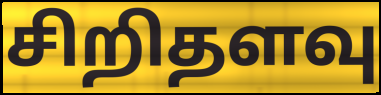
சிறிதளவு